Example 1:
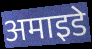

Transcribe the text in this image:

अमाइडे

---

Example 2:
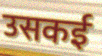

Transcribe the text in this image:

उसकई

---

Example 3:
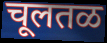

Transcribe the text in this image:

चूलतळ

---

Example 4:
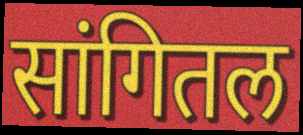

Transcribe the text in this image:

सांगितल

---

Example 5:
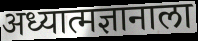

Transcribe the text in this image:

अध्यात्मज्ञानाला